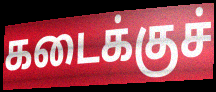
கடைக்குச்